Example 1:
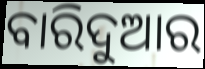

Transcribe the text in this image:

ବାରିଦୁଆର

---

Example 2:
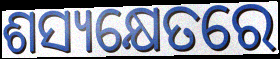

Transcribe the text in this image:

ଶସ୍ୟକ୍ଷେତରେ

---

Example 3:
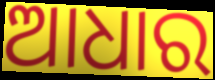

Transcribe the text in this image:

ଆଧାର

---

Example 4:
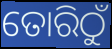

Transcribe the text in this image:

ତୋରିଠୁଁ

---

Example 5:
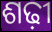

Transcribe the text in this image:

ଶଢ଼ୀ